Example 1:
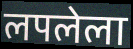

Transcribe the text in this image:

लपलेला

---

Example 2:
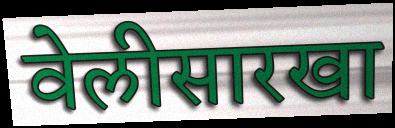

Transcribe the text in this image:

वेलीसारखा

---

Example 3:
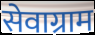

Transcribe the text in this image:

सेवाग्राम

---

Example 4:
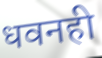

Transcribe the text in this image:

धवनही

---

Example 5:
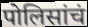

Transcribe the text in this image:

पोलिसांचं